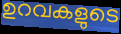
ഉറവകളുടെ